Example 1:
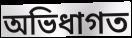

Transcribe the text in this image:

অভিধাগত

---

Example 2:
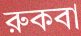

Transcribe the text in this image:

রুকবা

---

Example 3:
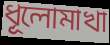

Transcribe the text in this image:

ধূলোমাখা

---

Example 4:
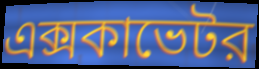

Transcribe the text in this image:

এক্সকাভেটর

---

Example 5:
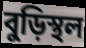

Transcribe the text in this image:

বুড়িস্থল